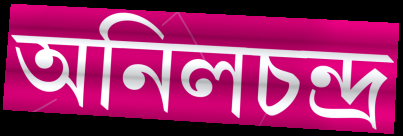
অনিলচন্দ্র